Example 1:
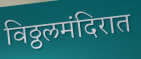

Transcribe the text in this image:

विठ्ठलमंदिरात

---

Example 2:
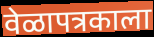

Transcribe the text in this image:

वेळापत्रकाला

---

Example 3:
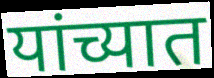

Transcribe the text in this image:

यांच्यात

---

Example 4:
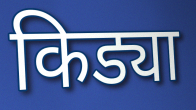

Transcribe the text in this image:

किड्या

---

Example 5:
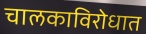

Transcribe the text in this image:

चालकाविरोधात